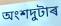
অংশদুটাৰ